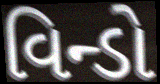
વિન્ડો